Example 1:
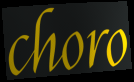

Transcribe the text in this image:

choro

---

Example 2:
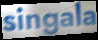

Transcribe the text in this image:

singala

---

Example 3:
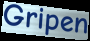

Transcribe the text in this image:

Gripen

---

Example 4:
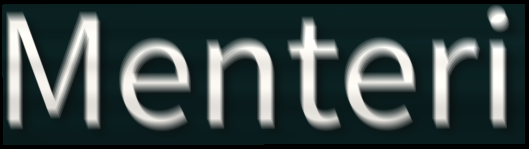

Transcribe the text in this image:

Menteri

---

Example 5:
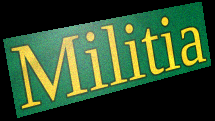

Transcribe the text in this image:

Militia